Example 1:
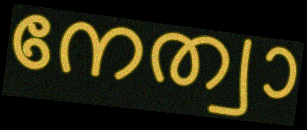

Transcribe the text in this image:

നേത്വാ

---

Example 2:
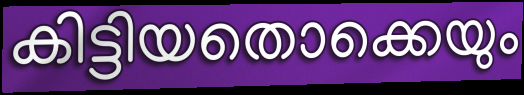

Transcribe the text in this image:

കിട്ടിയതൊക്കെയും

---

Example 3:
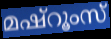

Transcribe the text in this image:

മഷ്റൂംസ്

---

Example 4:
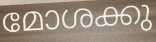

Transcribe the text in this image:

മോശക്കു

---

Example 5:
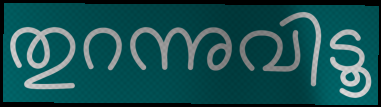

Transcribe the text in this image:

തുറന്നുവിടൂ